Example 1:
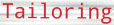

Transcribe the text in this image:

Tailoring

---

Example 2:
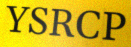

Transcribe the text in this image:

YSRCP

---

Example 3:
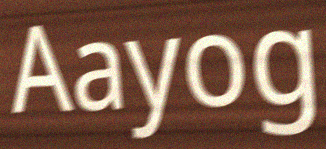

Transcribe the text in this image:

Aayog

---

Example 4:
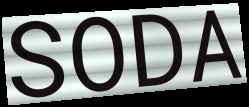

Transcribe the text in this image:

SODA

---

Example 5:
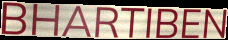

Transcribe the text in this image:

BHARTIBEN